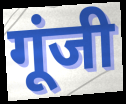
गूंजी